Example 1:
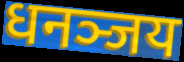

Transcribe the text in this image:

धनञ्जय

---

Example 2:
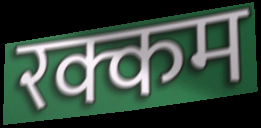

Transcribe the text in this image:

रक्कम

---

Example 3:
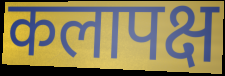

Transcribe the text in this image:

कलापक्ष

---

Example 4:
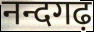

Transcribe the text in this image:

नन्दगढ़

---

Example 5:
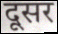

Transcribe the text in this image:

दूसर